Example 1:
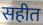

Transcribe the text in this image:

सहीत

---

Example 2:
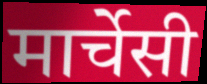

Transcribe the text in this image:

मार्चेसी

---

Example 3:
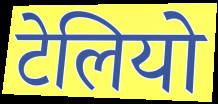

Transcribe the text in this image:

टेलियो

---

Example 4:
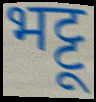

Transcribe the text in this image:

भट्टू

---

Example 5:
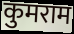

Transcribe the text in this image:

कुमराम